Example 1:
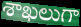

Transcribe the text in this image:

శాఖలుగా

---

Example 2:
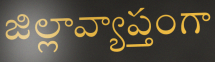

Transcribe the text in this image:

జిల్లావ్యాప్తంగా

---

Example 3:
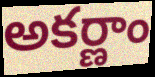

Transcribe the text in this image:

అకర్ణాం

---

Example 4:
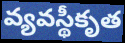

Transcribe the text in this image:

వ్యవస్థీకృత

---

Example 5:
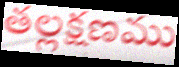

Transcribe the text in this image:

తల్లక్షణము